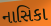
નાસિકા